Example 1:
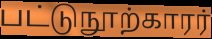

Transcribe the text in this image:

பட்டுநூற்காரர்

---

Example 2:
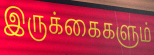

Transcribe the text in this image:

இருக்கைகளும்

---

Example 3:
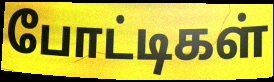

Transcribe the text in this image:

போட்டிகள்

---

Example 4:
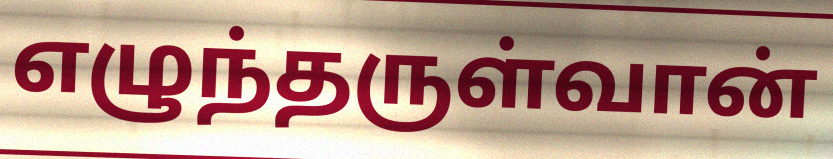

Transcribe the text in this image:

எழுந்தருள்வான்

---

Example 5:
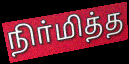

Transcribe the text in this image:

நிர்மித்த